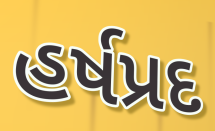
હર્ષપ્રદ